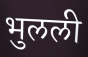
भुलली